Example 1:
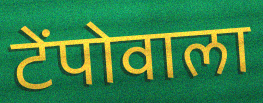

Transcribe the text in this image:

टेंपोवाला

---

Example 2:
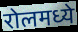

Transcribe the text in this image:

रोलमध्ये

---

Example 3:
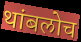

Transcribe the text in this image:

थांबलोच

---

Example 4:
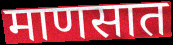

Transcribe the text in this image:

माणसात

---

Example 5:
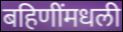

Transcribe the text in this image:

बहिणींमधली